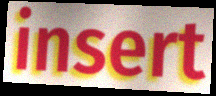
insert